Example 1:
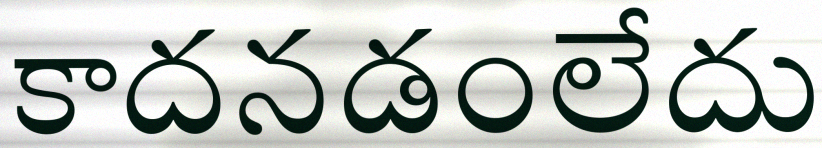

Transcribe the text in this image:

కాదనడంలేదు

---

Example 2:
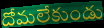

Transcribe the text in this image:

దోమలేకుండు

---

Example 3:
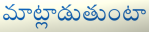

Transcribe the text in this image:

మాట్లాడుతుంటా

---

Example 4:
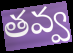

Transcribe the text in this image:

తవ్వ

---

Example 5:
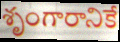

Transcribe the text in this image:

శృంగారానికే